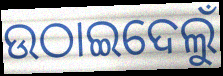
ଉଠାଇଦେଲୁଁ